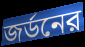
জর্ডনের